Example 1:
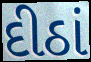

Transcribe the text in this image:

દીઠાં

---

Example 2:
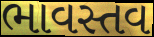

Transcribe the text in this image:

ભાવસ્તવ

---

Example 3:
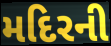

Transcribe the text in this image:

મદિરની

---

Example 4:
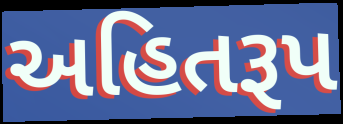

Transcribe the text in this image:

અહિતરૂપ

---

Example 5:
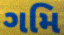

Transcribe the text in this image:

ગમિ